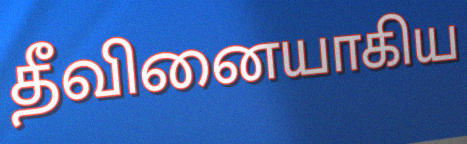
தீவினையாகிய